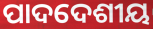
ପାଦଦେଶୀୟ